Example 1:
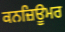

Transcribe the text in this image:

ਕਨਜ਼ਿਊਮਰ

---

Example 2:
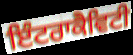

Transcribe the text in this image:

ਇੰਟਰਾਕੈਵਿਟੀ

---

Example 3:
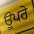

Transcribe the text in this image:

ਊਪਰੇ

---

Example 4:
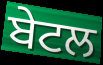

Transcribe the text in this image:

ਬੇਟਲ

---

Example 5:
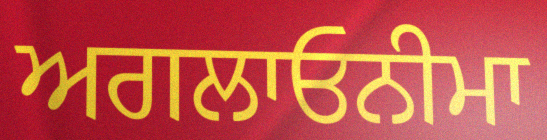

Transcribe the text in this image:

ਅਗਲਾਓਨੀਮਾ